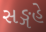
સઙ્ગહે